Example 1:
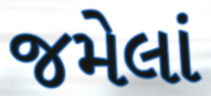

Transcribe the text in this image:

જમેલાં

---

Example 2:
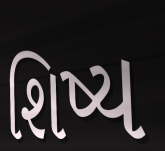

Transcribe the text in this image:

શિષ્ય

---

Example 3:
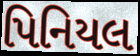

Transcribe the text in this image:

પિનિયલ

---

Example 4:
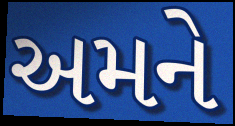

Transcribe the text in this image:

અમને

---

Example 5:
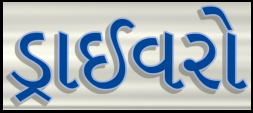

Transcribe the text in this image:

ડ્રાઈવરો